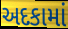
અદકામાં